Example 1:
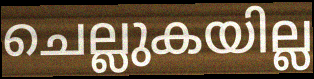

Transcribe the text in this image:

ചെല്ലുകയില്ല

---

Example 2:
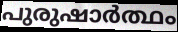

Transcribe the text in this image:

പുരുഷാർത്ഥം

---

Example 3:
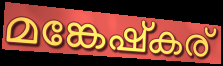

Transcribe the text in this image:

മങ്കേഷ്കര്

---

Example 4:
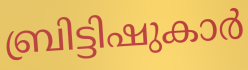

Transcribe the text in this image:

ബ്രിട്ടിഷുകാർ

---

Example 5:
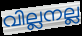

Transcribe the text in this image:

വില്ലനല്ല